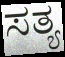
ಸತ್ಯ